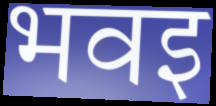
भवइ